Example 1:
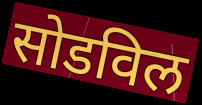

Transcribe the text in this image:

सोडविल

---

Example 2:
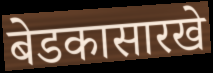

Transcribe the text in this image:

बेडकासारखे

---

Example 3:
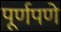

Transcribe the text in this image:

पूर्णपणे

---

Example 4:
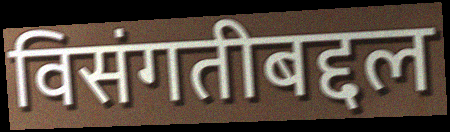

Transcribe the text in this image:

विसंगतीबद्दल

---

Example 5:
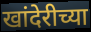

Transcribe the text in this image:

खांदेरीच्या